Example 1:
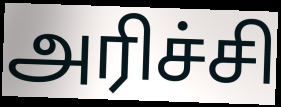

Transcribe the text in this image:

அரிச்சி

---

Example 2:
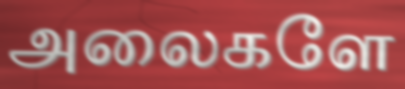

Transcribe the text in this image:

அலைகளே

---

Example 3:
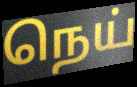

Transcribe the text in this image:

நெய்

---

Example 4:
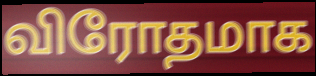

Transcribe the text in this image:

விரோதமாக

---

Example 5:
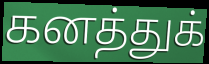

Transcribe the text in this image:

கனத்துக்